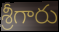
శ్రీగారు